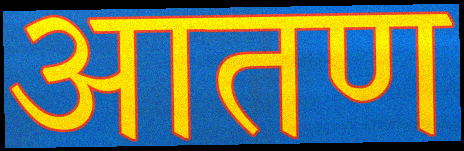
आतण